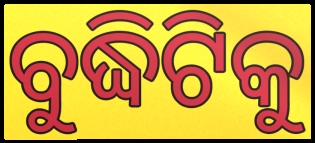
ବୁଦ୍ଧିଟିକୁ